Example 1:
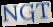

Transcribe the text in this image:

NGT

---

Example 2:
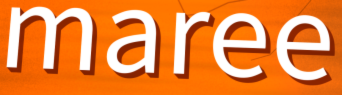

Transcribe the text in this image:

maree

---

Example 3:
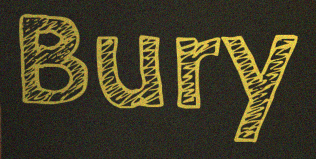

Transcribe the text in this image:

Bury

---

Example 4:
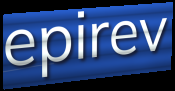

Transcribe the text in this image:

epirev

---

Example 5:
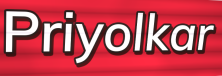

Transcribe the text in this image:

Priyolkar